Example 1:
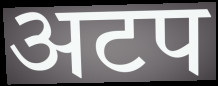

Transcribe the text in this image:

अटप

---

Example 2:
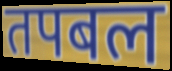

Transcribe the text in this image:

तपबल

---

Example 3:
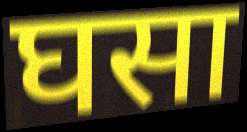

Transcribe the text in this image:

घसा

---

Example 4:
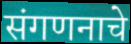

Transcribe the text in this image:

संगणनाचे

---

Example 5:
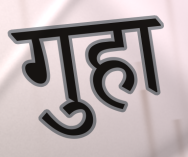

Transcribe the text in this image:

गुहा